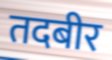
तदबीर